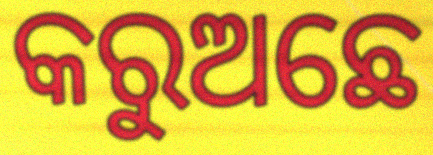
କରୁଅଛେ